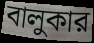
বালুকার